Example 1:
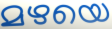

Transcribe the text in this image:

മഴയെ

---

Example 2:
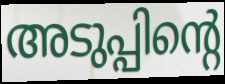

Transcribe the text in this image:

അടുപ്പിന്റെ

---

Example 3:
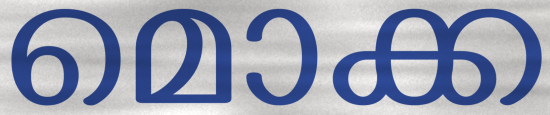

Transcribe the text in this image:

മൊക്ക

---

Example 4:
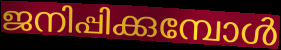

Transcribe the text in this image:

ജനിപ്പിക്കുമ്പോൾ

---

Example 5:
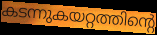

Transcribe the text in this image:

കടന്നുകയറ്റത്തിന്റെ